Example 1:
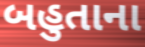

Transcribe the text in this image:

બહુતાના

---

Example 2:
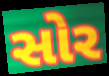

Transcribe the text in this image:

સોર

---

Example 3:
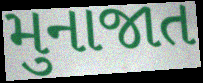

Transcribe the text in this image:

મુનાજાત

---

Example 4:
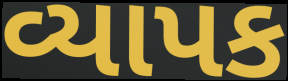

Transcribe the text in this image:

વ્યાપક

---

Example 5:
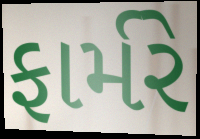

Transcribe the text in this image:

ફાર્મરે